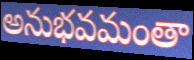
అనుభవమంతా